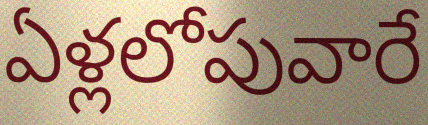
ఏళ్లలోపువారే